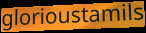
glorioustamils